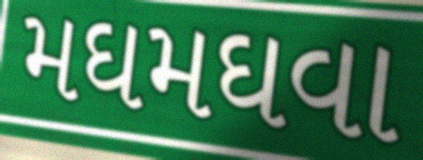
મઘમઘવા